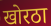
खोरठा